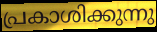
പ്രകാശിക്കുന്നു